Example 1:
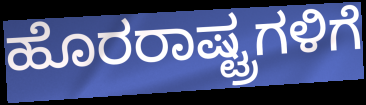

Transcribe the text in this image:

ಹೊರರಾಷ್ಟ್ರಗಳಿಗೆ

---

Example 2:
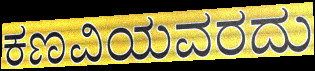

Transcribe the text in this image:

ಕಣವಿಯವರದು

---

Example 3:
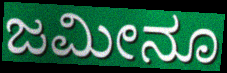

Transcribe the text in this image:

ಜಮೀನೂ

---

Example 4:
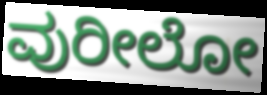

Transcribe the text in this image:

ವುರೀಲೋ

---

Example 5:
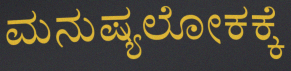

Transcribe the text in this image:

ಮನುಷ್ಯಲೋಕಕ್ಕೆ